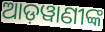
ଆଡ଼ୱାଣୀଙ୍କ